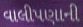
વાલીપણાની